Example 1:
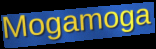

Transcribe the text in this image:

Mogamoga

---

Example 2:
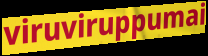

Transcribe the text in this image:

viruviruppumai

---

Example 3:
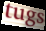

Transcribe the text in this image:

tugs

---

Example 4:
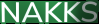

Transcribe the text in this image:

NAKKS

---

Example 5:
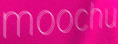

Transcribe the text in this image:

moochu